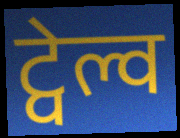
ट्वेल्व